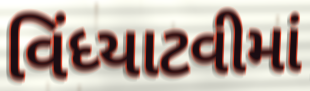
વિંધ્યાટવીમાં